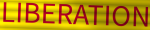
LIBERATION